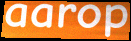
aarop